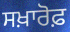
ਸਖ਼ਾਰੋਫ਼